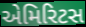
એમિરિટસ